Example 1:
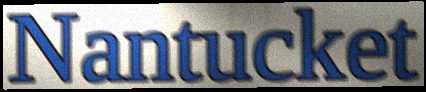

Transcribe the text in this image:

Nantucket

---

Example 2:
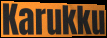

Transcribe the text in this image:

Karukku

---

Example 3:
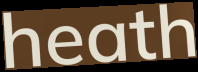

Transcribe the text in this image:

heath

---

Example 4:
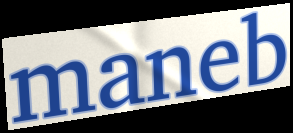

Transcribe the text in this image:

maneb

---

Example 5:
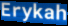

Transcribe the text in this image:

Erykah